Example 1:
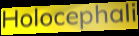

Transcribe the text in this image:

Holocephali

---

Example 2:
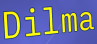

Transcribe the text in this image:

Dilma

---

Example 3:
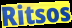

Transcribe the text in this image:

Ritsos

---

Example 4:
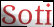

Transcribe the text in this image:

Soti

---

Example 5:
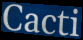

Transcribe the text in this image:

Cacti